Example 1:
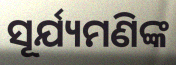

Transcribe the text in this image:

ସୂର୍ଯ୍ୟମଣିଙ୍କ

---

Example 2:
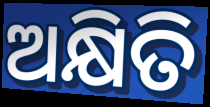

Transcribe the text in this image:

ଅକ୍ଷିତି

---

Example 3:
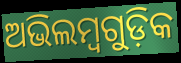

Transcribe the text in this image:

ଅଭିଲମ୍ବଗୁଡ଼ିକ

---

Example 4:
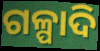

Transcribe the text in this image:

ଗଳ୍ପାଦି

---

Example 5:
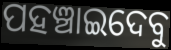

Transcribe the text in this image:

ପହଞ୍ଚାଇଦେବୁ